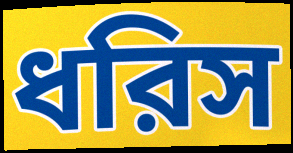
ধরিস